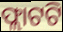
ଫ୍ଲାଟଟି